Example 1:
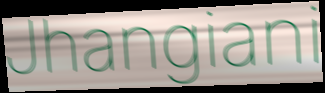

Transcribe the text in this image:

Jhangiani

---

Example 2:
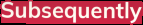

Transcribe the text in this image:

Subsequently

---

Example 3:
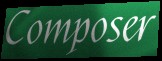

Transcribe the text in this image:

Composer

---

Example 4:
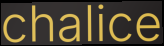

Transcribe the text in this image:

chalice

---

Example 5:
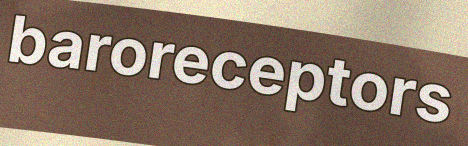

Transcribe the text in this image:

baroreceptors